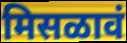
मिसळावं